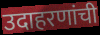
उदाहरणांची